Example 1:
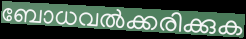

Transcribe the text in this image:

ബോധവൽക്കരിക്കുക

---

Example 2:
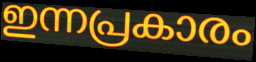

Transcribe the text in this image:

ഇന്നപ്രകാരം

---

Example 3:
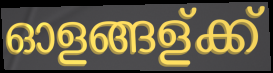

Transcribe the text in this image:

ഓളങ്ങള്ക്ക്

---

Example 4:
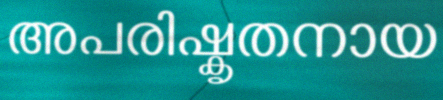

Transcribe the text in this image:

അപരിഷ്കൃതനായ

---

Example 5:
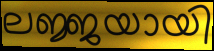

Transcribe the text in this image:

ലജ്ജയായി